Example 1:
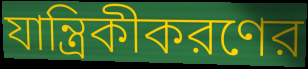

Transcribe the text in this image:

যান্ত্রিকীকরণের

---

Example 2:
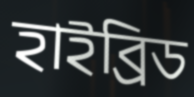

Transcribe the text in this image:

হাইব্রিড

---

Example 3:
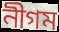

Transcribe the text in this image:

নীগম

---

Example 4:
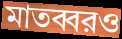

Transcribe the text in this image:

মাতব্বরও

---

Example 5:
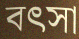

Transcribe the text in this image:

বৎসা